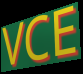
VCE